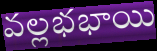
వల్లభభాయి